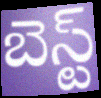
బెస్ట్